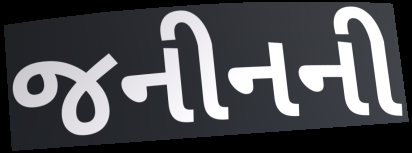
જનીનની